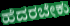
ಹೆದರಬೇಕು